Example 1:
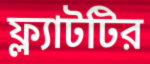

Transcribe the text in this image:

ফ্ল্যাটটির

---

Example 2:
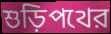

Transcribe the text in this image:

শুড়িপথের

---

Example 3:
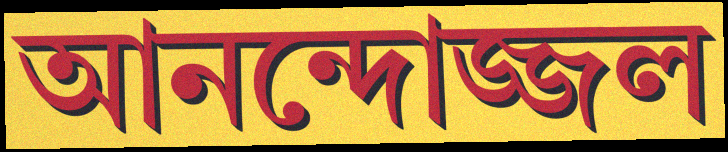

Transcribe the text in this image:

আনন্দোজ্জল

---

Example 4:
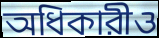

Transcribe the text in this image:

অধিকারীও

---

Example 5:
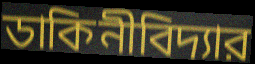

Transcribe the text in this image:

ডাকিনীবিদ্যার